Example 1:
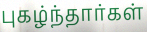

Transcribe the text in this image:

புகழ்ந்தார்கள்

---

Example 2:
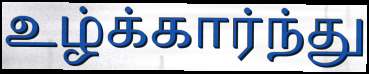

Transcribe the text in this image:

உழ்க்கார்ந்து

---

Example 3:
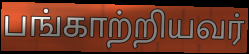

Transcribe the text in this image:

பங்காற்றியவர்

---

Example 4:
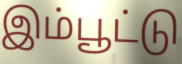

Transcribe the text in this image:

இம்பூட்டு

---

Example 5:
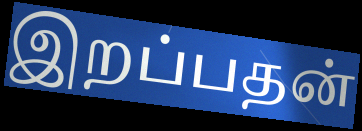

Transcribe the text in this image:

இறப்பதன்